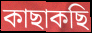
কাছাকছি